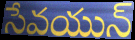
సేవయున్